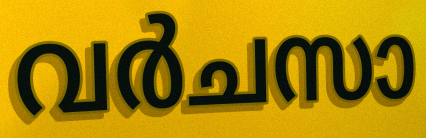
വർചസാ